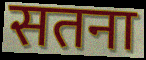
सतना